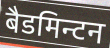
बैडमिन्टन